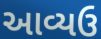
આવ્યઉ